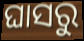
ଘାସରୁ